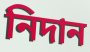
নিদান